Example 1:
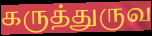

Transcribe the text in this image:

கருத்துருவ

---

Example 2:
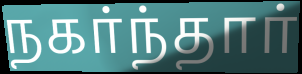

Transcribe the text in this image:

நகர்ந்தார்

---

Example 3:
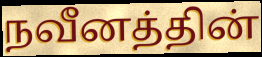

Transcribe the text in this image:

நவீனத்தின்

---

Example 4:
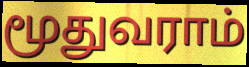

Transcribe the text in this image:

மூதுவராம்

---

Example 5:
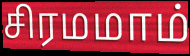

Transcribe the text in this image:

சிரமமாம்